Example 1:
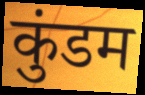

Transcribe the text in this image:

कुंडम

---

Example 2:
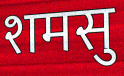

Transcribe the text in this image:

शमसु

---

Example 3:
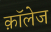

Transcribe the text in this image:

क़ॉलेज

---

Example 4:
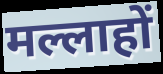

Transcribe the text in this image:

मल्लाहों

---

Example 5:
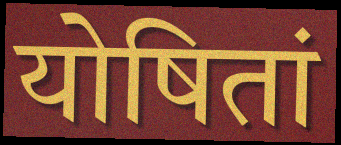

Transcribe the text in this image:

योषितां